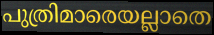
പുത്രിമാരെയല്ലാതെ